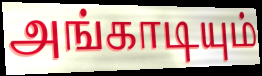
அங்காடியும்